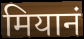
मियानं